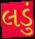
લડું